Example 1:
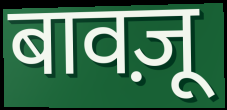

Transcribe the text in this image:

बावज़ू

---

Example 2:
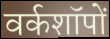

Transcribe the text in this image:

वर्कशॉपों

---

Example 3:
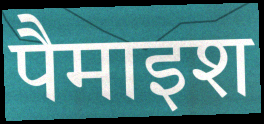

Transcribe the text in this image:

पैमाइश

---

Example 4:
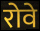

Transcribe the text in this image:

रोवे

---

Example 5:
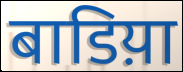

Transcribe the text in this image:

बाडिय़ा